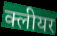
क्लीयर